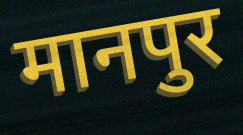
मानपुर